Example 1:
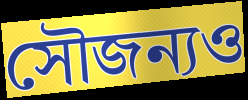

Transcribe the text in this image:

সৌজন্যও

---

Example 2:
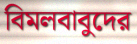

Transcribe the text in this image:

বিমলবাবুদের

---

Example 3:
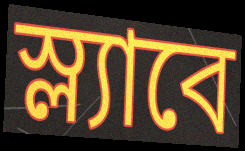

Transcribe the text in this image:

স্ল্যাবে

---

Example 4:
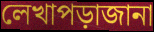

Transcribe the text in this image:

লেখাপড়াজানা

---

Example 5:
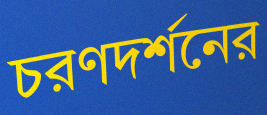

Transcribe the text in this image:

চরণদর্শনের